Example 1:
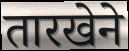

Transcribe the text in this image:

तारखेने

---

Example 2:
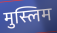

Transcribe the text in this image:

मुस्लिम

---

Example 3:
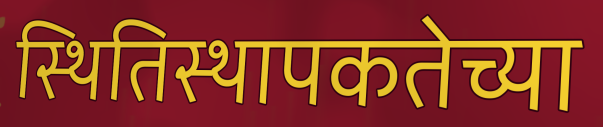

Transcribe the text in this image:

स्थितिस्थापकतेच्या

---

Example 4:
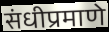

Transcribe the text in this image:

संधीप्रमाणे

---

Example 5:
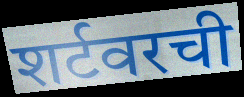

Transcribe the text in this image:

शर्टवरची